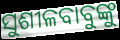
ସୁଶୀଳବାବୁଙ୍କୁ